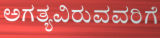
ಅಗತ್ಯವಿರುವವರಿಗೆ